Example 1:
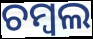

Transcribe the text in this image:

ଚମ୍ବଲ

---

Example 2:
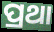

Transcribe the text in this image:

ପ୍ରଥା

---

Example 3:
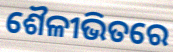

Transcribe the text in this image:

ଶୈଳୀଭିତରେ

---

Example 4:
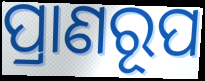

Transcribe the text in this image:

ପ୍ରାଣରୂପ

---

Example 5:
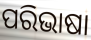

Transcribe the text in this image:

ପରିଭାଷା